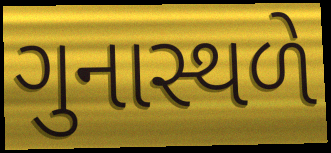
ગુનાસ્થળે